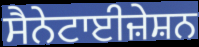
ਸੈਨੇਟਾਈਜ਼ੇਸ਼ਨ